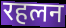
रहलन